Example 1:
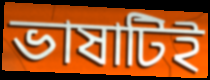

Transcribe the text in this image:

ভাষাটিই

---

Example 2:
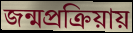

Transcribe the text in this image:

জন্মপ্রক্রিয়ায়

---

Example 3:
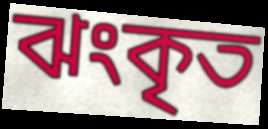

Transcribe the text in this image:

ঝংকৃত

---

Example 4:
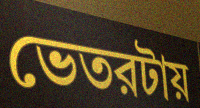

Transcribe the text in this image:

ভেতরটায়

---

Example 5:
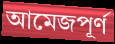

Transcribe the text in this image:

আমেজপূর্ণ